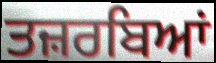
ਤਜ਼ਰਬਿਆਂ